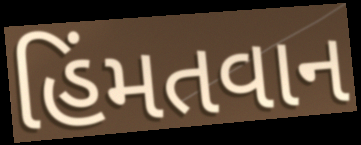
હિંમતવાન